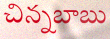
చిన్నబాబు